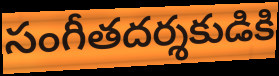
సంగీతదర్శకుడికి